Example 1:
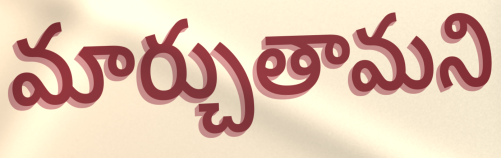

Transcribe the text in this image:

మార్చుతామని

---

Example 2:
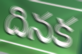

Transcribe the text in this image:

దినక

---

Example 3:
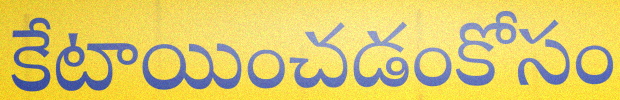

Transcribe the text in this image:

కేటాయించడంకోసం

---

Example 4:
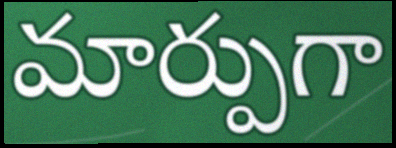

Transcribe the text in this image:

మార్పుగా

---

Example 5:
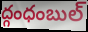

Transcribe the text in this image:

ద్గంధంబుల్